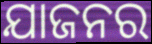
ଯାଜନର